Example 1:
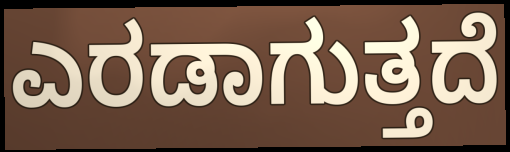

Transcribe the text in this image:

ಎರಡಾಗುತ್ತದೆ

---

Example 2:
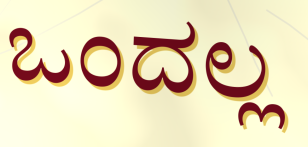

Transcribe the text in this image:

ಒಂದಲ್ಲ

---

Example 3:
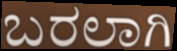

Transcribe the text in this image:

ಬರಲಾಗಿ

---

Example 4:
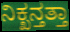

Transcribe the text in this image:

ನಿಕ್ಖನ್ತತ್ತಾ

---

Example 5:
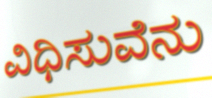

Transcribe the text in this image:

ವಿಧಿಸುವೆನು